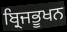
ਬ੍ਰਿਜਭੂਖਨ